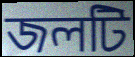
জলটি